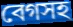
বেগসহ